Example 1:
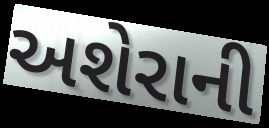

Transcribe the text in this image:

અશેરાની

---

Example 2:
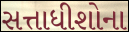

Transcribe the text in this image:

સત્તાધીશોના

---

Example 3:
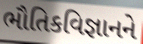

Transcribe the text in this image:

ભૌતિકવિજ્ઞાનને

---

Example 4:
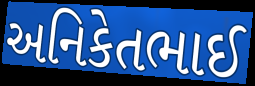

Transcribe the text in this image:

અનિકેતભાઈ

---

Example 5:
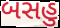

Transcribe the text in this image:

બસહુ